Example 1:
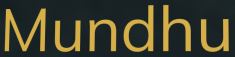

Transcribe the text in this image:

Mundhu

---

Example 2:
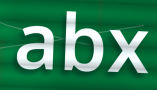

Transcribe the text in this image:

abx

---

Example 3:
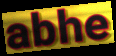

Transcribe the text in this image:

abhe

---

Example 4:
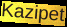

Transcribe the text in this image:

Kazipet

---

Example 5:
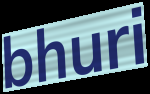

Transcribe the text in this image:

bhuri